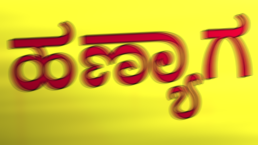
ಹಣ್ಯಾಗ